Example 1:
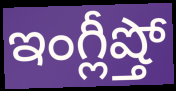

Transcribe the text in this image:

ఇంగ్లీష్తో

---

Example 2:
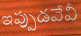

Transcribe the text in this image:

ఇప్పుడవేవీ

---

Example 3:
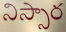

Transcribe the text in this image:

నిస్సార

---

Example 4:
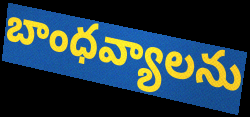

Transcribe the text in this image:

బాంధవ్యాలను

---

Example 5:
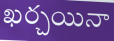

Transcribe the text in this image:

ఖర్చయినా